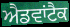
ਐਡਵਾਂਟੈਕ